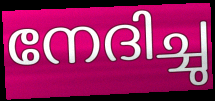
നേദിച്ചു